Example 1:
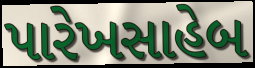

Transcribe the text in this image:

પારેખસાહેબ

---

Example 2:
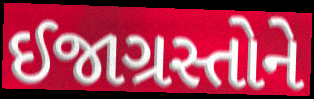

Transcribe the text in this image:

ઈજાગ્રસ્તોને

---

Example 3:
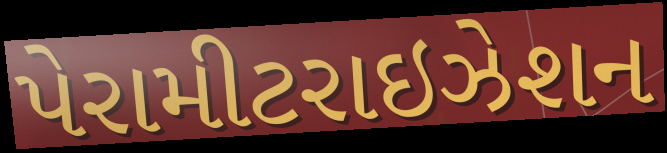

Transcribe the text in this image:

પેરામીટરાઇઝેશન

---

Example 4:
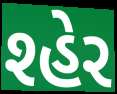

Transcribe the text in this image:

શ્હેર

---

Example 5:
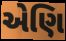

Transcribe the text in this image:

એણિ